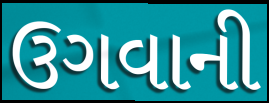
ઉગવાની